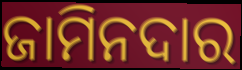
ଜାମିନଦାର